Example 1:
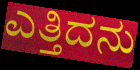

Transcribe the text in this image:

ಎತ್ತಿದನು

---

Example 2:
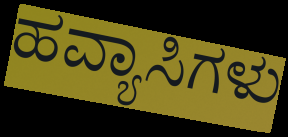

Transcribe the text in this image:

ಹವ್ಯಾಸಿಗಳು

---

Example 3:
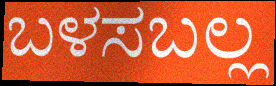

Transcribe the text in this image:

ಬಳಸಬಲ್ಲ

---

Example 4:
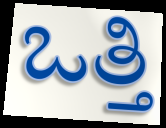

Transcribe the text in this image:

ಒತ್ತಿ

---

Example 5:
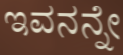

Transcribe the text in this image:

ಇವನನ್ನೇ